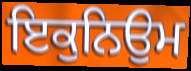
ਇਕੁਨਿਉਮ